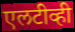
एलटीव्ही